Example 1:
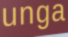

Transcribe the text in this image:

unga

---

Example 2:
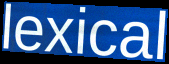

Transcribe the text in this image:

lexical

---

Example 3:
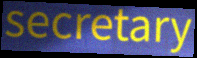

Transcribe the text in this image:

secretary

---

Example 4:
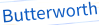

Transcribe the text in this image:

Butterworth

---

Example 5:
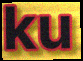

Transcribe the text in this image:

ku